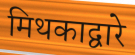
मिथकाद्वारे